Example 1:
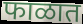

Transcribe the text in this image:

फाळात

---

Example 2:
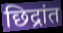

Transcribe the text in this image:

छिद्रांत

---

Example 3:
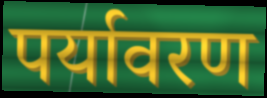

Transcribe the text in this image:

पर्यावरण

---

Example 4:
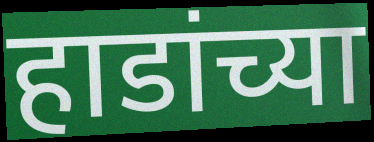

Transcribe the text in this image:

हाडांच्या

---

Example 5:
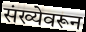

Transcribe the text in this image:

संख्येवरून